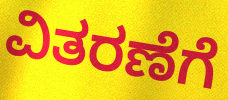
ವಿತರಣೆಗೆ